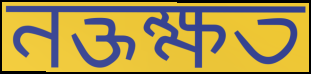
নক্তক্ষত